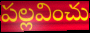
పల్లవించు